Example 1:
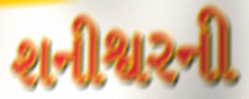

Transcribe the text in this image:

શનીશ્વરની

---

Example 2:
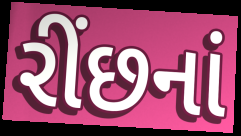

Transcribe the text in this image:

રીંછનાં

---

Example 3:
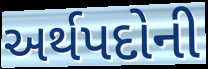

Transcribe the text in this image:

અર્થપદોની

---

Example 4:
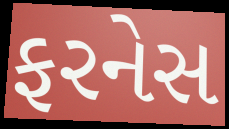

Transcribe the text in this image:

ફરનેસ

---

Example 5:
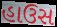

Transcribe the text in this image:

હાઉસ